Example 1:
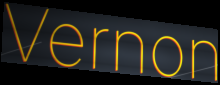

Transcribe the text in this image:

Vernon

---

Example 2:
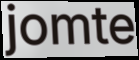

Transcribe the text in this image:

jomte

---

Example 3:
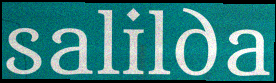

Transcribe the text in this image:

salilda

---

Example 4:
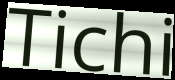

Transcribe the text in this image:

Tichi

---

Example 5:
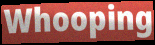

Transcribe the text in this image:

Whooping